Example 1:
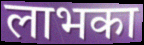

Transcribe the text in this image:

लाभका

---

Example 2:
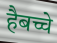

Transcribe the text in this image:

हैबच्चे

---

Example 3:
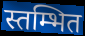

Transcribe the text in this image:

स्तम्भित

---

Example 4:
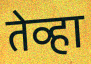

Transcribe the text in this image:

तेव्हा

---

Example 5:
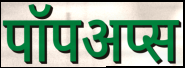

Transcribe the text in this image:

पॉपअप्स